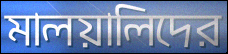
মালয়ালিদের